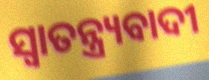
ସ୍ୱାତନ୍ତ୍ର୍ୟବାଦୀ